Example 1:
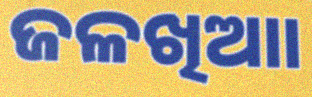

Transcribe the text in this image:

ଜଳଖିଆା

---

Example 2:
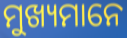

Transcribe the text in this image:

ମୁଖ୍ୟମାନେ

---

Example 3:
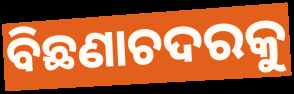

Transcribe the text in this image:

ବିଛଣାଚଦରକୁ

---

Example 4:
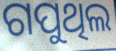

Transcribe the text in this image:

ଗପୁଥିଲ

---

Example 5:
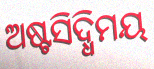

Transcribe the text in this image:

ଅଷ୍ଟସିଦ୍ଧିମୟ